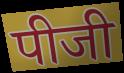
पीजी